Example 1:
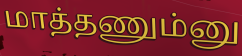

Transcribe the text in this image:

மாத்தணும்னு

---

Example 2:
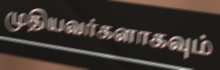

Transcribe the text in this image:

முதியவர்களாகவும்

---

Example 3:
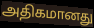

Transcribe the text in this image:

அதிகமானது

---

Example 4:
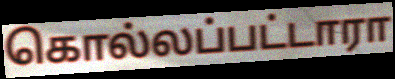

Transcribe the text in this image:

கொல்லப்பட்டாரா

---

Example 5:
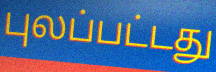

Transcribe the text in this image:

புலப்பட்டது